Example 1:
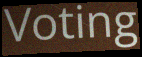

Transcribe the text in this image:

Voting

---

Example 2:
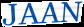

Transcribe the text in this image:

JAAN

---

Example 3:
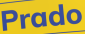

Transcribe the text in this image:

Prado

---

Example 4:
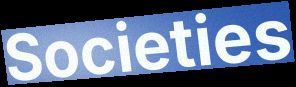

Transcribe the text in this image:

Societies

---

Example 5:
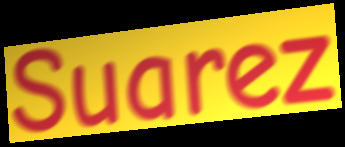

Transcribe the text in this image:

Suarez